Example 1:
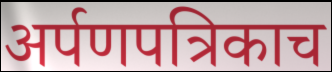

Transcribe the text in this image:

अर्पणपत्रिकाच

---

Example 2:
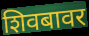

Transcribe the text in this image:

शिवबावर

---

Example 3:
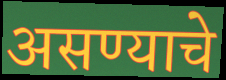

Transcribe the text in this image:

असण्याचे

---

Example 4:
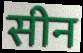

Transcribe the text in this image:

सीन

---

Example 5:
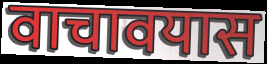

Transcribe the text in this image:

वाचावयास